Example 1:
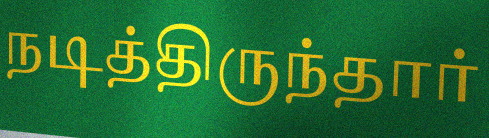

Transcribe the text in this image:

நடித்திருந்தார்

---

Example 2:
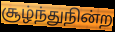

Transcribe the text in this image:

சூழ்ந்துநின்ற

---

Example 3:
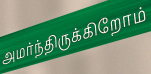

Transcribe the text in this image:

அமர்ந்திருக்கிறோம்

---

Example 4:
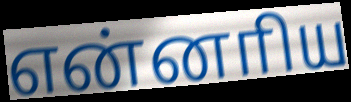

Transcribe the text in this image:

என்னரிய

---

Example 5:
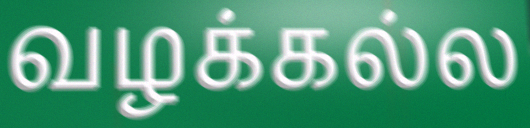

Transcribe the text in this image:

வழக்கல்ல